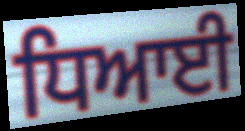
ਧਿਆਈ